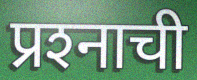
प्रश्‍नाची